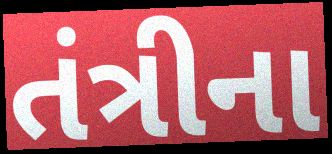
તંત્રીના